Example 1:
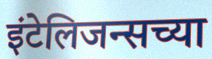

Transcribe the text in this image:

इंटेलिजन्सच्या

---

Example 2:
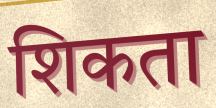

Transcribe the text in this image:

शिकता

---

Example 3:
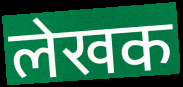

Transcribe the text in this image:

लेखक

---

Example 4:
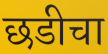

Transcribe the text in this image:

छडीचा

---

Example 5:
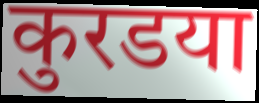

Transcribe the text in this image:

कुरडया